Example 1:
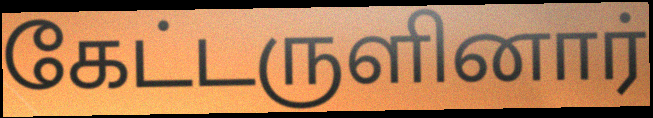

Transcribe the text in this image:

கேட்டருளினார்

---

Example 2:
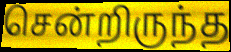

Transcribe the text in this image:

சென்றிருந்த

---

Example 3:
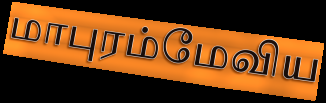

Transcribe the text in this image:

மாபுரம்மேவிய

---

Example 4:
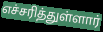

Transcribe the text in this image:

எச்சரித்துள்ளார்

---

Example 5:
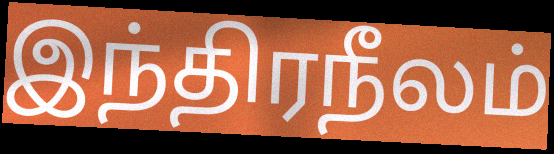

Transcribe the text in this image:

இந்திரநீலம்